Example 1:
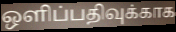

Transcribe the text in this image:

ஒளிப்பதிவுக்காக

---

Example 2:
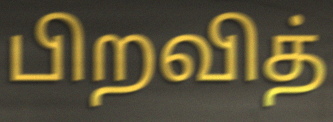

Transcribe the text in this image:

பிறவித்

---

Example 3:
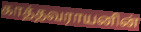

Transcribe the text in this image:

காத்தவராயனின்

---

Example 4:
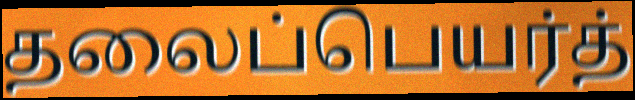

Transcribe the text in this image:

தலைப்பெயர்த்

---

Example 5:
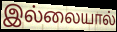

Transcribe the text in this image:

இல்லையால்